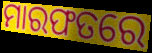
ମାରଫତରେ